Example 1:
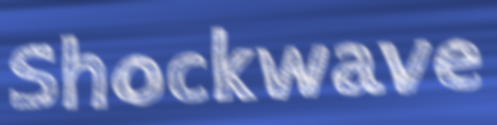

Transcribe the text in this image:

Shockwave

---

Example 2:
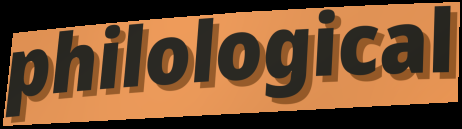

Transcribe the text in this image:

philological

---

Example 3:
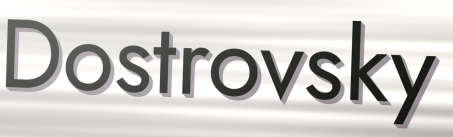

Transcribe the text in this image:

Dostrovsky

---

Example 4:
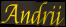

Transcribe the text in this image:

Andrii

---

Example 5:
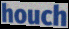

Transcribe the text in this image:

houch